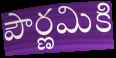
పౌర్ణమికి